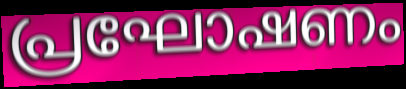
പ്രഘോഷണം